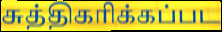
சுத்திகரிக்கப்பட